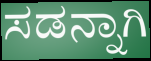
ಸಡನ್ನಾಗಿ